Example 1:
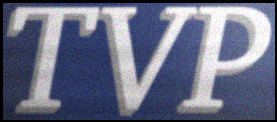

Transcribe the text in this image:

TVP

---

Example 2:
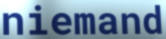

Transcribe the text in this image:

niemand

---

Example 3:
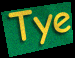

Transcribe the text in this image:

Tye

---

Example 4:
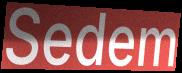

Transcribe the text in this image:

Sedem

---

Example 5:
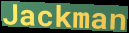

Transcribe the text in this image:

Jackman